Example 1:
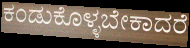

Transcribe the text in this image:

ಕಂಡುಕೊಳ್ಳಬೇಕಾದರೆ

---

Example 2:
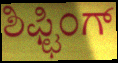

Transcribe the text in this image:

ಶಿಫ್ಟಿಂಗ್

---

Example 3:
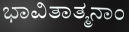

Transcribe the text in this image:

ಭಾವಿತಾತ್ಮನಾಂ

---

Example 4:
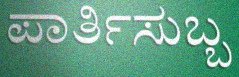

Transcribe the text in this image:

ಪಾರ್ತಿಸುಬ್ಬ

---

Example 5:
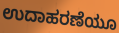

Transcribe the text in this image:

ಉದಾಹರಣೆಯೂ